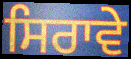
ਸਿਰਾਵੇ